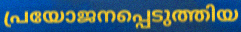
പ്രയോജനപ്പെടുത്തിയ